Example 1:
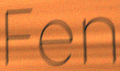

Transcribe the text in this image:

Fen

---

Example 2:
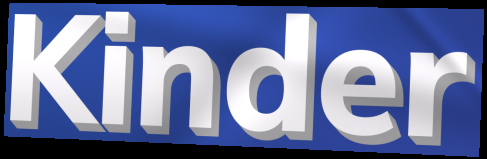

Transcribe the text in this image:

Kinder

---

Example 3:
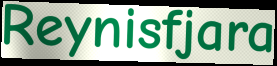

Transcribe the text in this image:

Reynisfjara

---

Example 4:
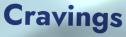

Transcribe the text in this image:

Cravings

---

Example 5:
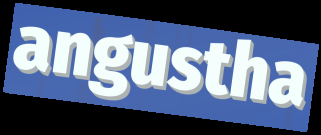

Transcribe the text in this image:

angustha